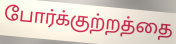
போர்க்குற்றத்தை